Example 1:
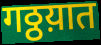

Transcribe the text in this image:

गठ्ठय़ात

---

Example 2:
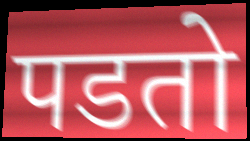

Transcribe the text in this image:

पडतो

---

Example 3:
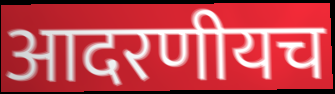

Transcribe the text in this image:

आदरणीयच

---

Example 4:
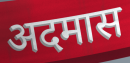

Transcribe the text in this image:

अदमास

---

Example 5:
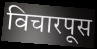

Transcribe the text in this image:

विचारपूस